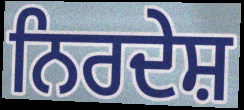
ਨਿਰਦੇਸ਼